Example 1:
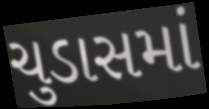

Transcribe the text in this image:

ચુડાસમાં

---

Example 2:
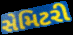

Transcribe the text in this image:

સેમિટરી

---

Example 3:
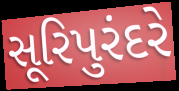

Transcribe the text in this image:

સૂરિપુરંદરે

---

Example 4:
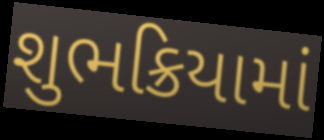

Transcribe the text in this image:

શુભક્રિયામાં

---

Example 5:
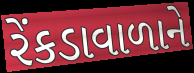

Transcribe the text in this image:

રેંકડાવાળાને